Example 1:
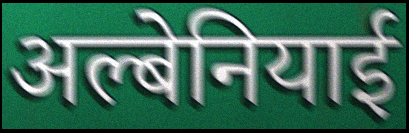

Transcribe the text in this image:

अल्बेनियाई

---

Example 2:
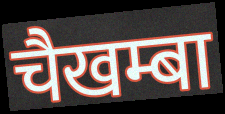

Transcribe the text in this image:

चैखम्बा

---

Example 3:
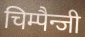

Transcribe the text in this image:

चिम्पैन्जी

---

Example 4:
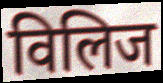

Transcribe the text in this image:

विलिज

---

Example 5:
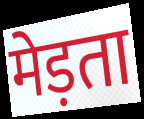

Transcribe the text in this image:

मेड़ता